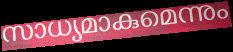
സാധ്യമാകുമെന്നും